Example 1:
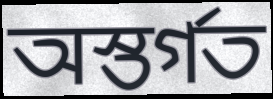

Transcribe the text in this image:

অস্তর্গত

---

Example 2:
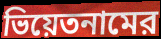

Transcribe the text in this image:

ভিয়েতনামের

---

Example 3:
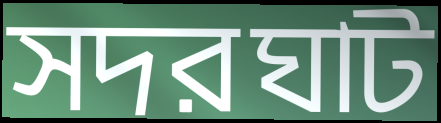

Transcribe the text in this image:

সদরঘাট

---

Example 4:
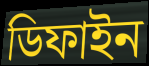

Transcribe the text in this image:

ডিফাইন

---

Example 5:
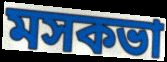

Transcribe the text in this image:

মসকভা